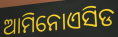
ଆମିନୋଏସିଡ